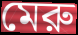
মেরু